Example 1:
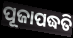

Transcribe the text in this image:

ପୂଜାପଦ୍ଧତି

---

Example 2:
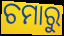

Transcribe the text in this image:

ଚମାରୁ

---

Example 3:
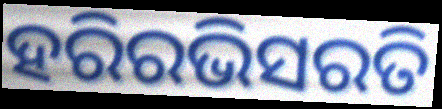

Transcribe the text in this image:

ହରିରଭିସରତି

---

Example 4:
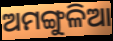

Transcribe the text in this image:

ଅମଙ୍ଗୁଳିଆ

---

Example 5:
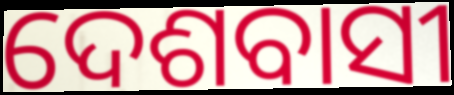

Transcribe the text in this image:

ଦେଶବାସୀ